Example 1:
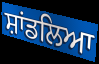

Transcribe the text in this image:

ਸ਼ਾਂਡਲਿਆ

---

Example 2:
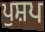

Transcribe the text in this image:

ਪੁਸ਼ਪ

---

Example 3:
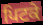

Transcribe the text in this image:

ਪਿਟਕੇ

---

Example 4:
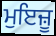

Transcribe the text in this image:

ਮੁਇਜ਼ੂ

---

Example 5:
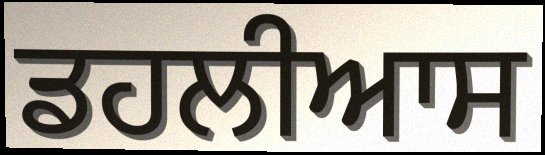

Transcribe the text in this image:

ਡਹਲੀਆਸ